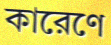
কারেণে